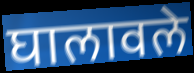
घालावले